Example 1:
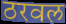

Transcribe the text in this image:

ठरवल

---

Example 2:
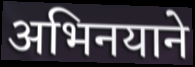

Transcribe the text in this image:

अभिनयाने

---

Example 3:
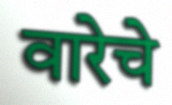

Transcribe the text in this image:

वारेचे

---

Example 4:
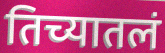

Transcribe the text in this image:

तिच्यातलं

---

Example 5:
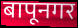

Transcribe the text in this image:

बापूनगर